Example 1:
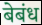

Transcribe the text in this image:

बेबंध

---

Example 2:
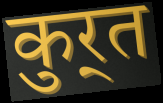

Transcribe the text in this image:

कुर्त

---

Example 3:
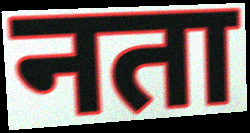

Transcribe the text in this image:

नता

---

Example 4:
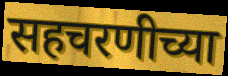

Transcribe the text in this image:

सहचरणीच्या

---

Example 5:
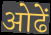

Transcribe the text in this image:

ओढें